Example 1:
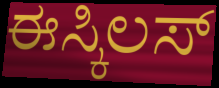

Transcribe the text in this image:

ಈಸ್ಕಿಲಸ್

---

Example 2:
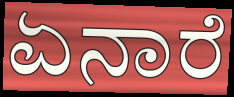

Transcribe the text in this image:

ಏನಾರೆ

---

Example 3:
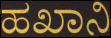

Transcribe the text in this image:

ಹಖಾನಿ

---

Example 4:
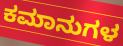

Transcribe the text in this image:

ಕಮಾನುಗಳ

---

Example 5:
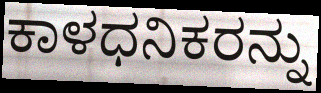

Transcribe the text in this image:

ಕಾಳಧನಿಕರನ್ನು